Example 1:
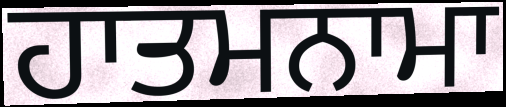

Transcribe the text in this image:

ਹਾਤਮਨਾਮਾ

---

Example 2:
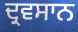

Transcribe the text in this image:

ਦ੍ਰਵਸਾਨ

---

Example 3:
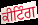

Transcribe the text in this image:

ਕੀਟਿੰਗ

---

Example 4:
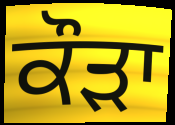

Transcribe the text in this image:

ਕੌਡ਼ਾ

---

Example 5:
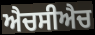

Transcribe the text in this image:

ਐਚਸੀਐਚ